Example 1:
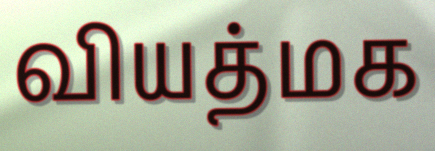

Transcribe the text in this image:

வியத்மக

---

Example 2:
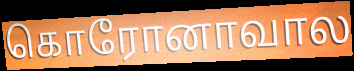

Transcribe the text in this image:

கொரோனாவால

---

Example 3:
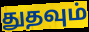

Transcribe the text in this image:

துதவும்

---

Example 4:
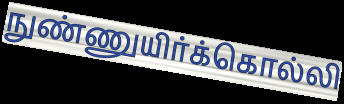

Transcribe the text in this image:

நுண்ணுயிர்க்கொல்லி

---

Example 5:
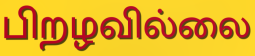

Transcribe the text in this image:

பிறழவில்லை